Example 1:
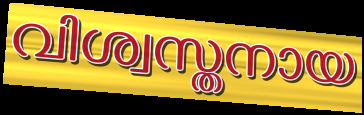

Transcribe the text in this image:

വിശ്വസ്തനായ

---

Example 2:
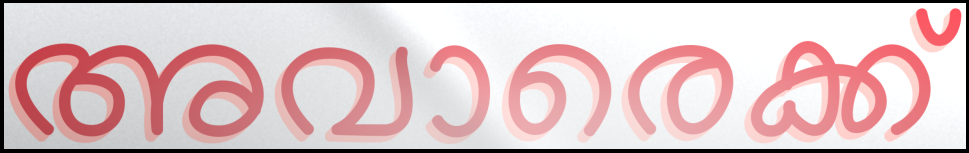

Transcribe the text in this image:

അവാരെക്ക്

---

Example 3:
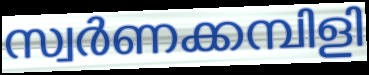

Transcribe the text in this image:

സ്വർണക്കമ്പിളി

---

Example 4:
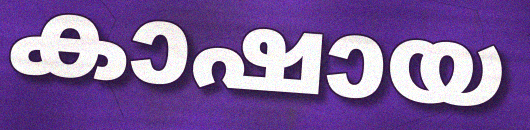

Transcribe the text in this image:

കാഷായ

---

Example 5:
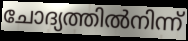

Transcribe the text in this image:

ചോദ്യത്തിൽനിന്ന്